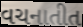
વચનાતીત